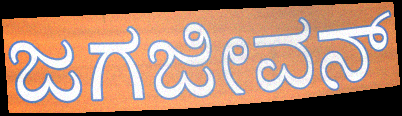
ಜಗಜೀವನ್